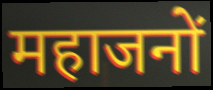
महाजनों